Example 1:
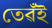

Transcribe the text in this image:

তেৱঁই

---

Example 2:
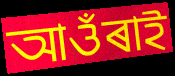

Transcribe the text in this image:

আওঁৰাই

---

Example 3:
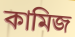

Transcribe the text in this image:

কামিজ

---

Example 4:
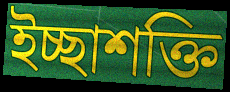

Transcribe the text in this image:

ইচ্ছাশক্তি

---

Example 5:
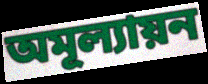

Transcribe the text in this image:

অমূল্যায়ন